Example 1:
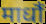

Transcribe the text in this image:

माधौं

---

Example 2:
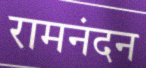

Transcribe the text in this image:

रामनंदन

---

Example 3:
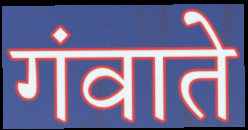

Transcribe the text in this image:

गंवाते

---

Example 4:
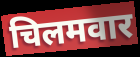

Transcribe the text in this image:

चिलमवार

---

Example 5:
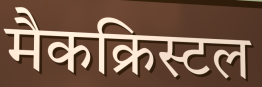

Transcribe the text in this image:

मैकक्रिस्टल